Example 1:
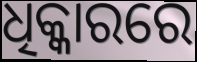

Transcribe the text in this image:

ଧିକ୍କାରରେ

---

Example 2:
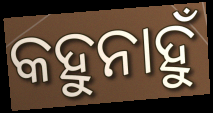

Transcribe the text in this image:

କହୁନାହୁଁ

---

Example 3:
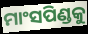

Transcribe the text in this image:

ମାଂସପିଣ୍ଡକୁ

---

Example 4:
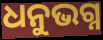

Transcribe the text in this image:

ଧନୁଭଗ୍ନ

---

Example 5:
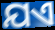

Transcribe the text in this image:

ଯଏ